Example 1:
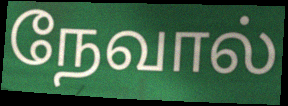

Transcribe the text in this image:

நேவால்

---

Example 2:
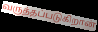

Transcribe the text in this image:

வருத்தப்படுகிறான்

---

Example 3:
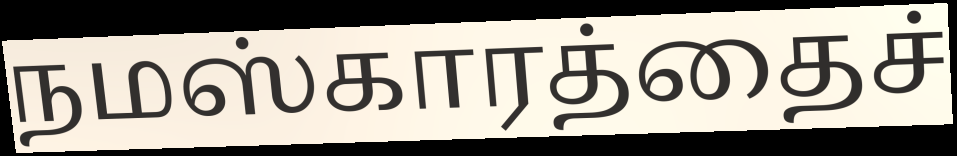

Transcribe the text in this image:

நமஸ்காரத்தைச்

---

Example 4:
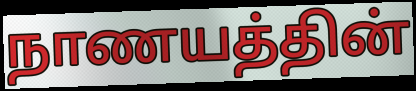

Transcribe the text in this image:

நாணயத்தின்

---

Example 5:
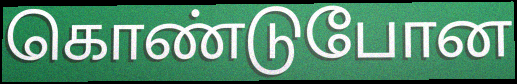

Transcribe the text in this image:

கொண்டுபோன